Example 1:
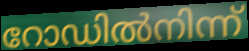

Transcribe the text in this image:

റോഡിൽനിന്ന്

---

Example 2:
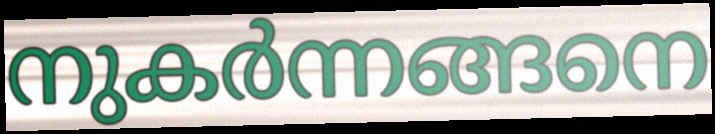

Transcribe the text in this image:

നുകർന്നങ്ങനെ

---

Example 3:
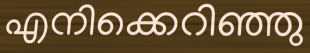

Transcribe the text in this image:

എനിക്കെറിഞ്ഞു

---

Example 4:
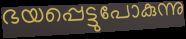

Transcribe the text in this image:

ഭയപ്പെട്ടുപോകുന്നു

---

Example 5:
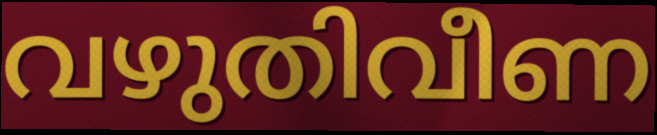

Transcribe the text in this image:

വഴുതിവീണ